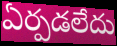
ఏర్పడలేదు